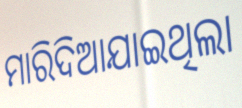
ମାରିଦିଆଯାଇଥିଲା